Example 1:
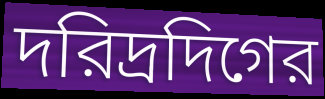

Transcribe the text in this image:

দরিদ্রদিগের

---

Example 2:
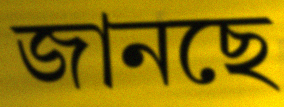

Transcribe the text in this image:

জানছে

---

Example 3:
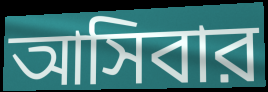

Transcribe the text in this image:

আসিবার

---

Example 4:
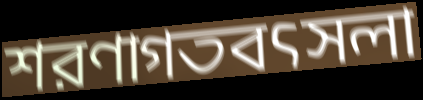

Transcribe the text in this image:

শরণাগতবৎসলা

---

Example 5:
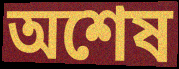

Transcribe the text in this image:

অশেষ